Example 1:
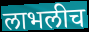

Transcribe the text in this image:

लाभलीच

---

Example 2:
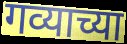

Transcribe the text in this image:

गव्याच्या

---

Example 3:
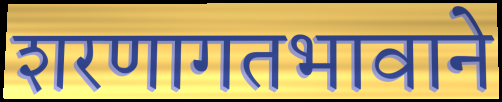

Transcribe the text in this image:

शरणागतभावाने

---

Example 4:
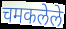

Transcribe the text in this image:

चमकलेले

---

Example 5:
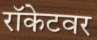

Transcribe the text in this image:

रॉकेटवर